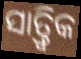
ସାତ୍ତ୍ବିକ